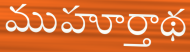
ముహూర్తాథ